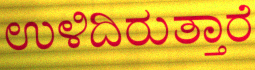
ಉಳಿದಿರುತ್ತಾರೆ